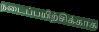
நடைப்பயிற்சிக்காக